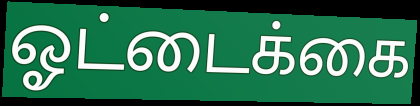
ஓட்டைக்கை